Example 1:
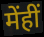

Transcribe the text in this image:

मेंहीं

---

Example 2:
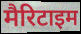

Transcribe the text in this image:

मैरिटाइम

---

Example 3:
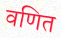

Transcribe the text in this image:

वणित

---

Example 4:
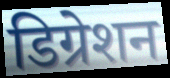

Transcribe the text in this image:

डिग्रेशन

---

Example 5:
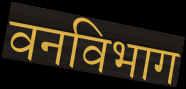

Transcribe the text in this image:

वनविभाग